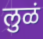
लुळं